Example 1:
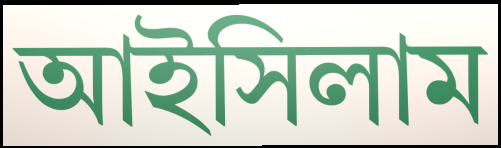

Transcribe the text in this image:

আইসিলাম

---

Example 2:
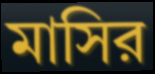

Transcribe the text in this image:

মাসির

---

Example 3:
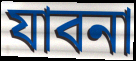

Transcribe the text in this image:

যাবনা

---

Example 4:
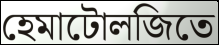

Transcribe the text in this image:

হেমাটোলজিতে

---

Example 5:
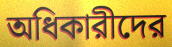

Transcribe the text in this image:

অধিকারীদের